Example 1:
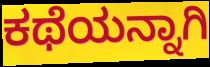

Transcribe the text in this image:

ಕಥೆಯನ್ನಾಗಿ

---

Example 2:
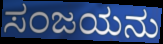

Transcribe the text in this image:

ಸಂಜಯನು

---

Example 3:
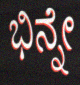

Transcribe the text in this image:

ಭಿನ್ನೇ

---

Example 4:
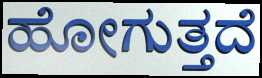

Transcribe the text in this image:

ಹೋಗುತ್ತದೆ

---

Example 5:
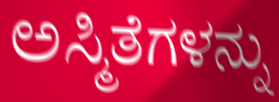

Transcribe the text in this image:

ಅಸ್ಮಿತೆಗಳನ್ನು